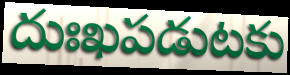
దుఃఖపడుటకు